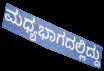
ಮಧ್ಯಭಾಗದಲ್ಲಿದ್ದು